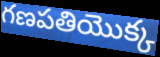
గణపతియొక్క